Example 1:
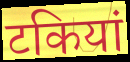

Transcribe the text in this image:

टकियां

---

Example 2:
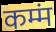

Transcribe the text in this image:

कम्मं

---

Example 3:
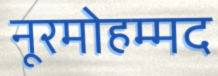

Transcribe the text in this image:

नूरमोहम्मद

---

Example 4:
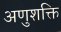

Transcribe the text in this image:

अणुशक्ति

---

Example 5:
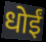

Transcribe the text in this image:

धोईं